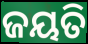
ଜୟତି